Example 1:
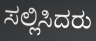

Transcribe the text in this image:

ಸಲ್ಲಿಸಿದರು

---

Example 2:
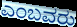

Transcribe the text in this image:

ಎಂಬವರು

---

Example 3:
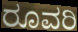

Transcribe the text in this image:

ರೂವರಿ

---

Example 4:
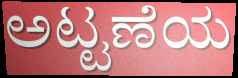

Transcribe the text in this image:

ಅಟ್ಟಣೆಯ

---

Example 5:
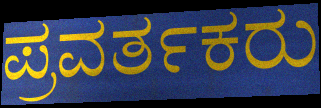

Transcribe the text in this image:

ಪ್ರವರ್ತಕರು